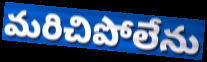
మరిచిపోలేను